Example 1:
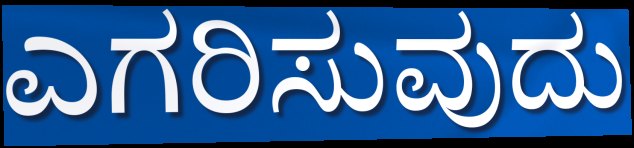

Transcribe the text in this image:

ಎಗರಿಸುವುದು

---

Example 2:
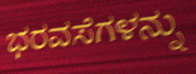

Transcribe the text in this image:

ಭರವಸೆಗಳನ್ನು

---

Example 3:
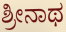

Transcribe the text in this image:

ಶ್ರೀನಾಥ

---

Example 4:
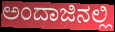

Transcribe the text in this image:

ಅಂದಾಜಿನಲ್ಲಿ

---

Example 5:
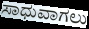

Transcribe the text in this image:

ಸಾಧುವಾಗಲು